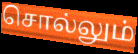
சொல்லும்